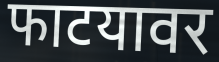
फाटयावर